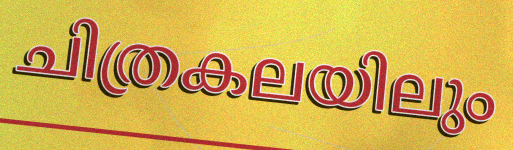
ചിത്രകലയിലും